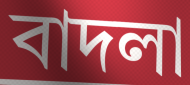
বাদলা